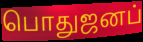
பொதுஜனப்